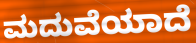
ಮದುವೆಯಾದೆ